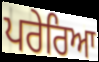
ਪਰੇਰਿਆ